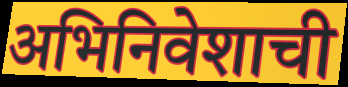
अभिनिवेशाची